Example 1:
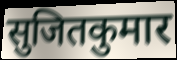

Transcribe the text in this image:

सुजितकुमार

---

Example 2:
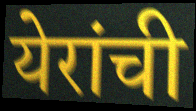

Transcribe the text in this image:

येरांची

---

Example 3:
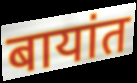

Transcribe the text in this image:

बायांत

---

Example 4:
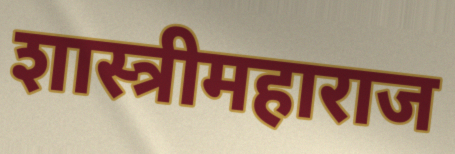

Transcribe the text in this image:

शास्त्रीमहाराज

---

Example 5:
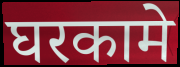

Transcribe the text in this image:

घरकामे